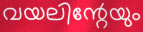
വയലിന്റേയും